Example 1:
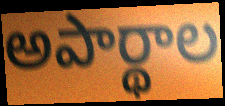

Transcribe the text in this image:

అపార్థాల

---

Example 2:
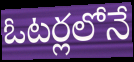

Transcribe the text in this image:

ఓటర్లలోనే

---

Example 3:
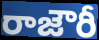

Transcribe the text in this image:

రాజౌరీ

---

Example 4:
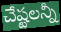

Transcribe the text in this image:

చేష్టలన్నీ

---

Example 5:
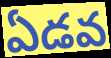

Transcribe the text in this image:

ఏడవ